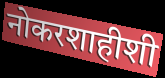
नोकरशाहीशी